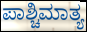
ಪಾಶ್ಚಿಮಾತ್ಯ